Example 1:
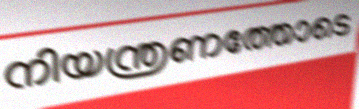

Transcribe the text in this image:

നിയന്ത്രണത്തോടെ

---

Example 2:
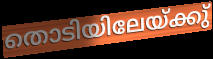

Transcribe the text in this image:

തൊടിയിലേയ്ക്കു്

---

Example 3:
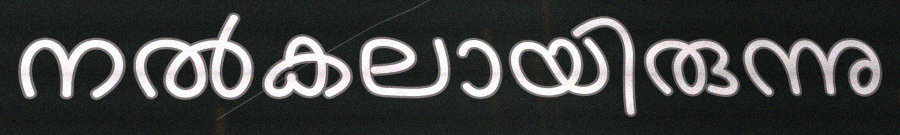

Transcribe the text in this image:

നൽകലായിരുന്നു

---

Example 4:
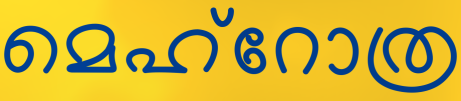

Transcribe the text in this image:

മെഹ്റോത്ര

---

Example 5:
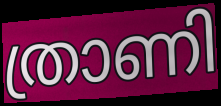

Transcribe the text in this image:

ത്രാണി